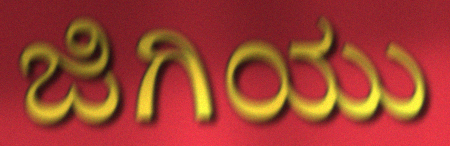
ಜಿಗಿಯು